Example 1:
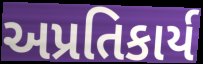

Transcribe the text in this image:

અપ્રતિકાર્ય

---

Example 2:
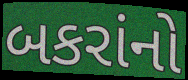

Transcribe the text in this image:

બકરાંનો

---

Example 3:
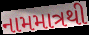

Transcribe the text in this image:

નામમાત્રથી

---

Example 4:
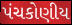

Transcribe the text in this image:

પંચકોણીય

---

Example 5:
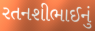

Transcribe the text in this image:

રતનશીભાઈનું